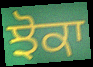
ਝੋਕਾ